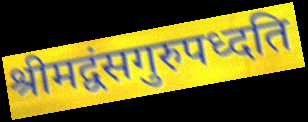
श्रीमद्वंसगुरुपध्दति